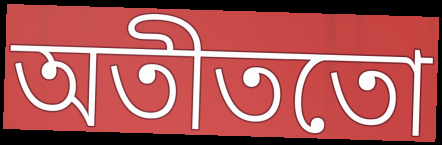
অতীততো